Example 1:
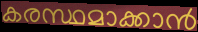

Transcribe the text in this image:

കരസ്ഥമാക്കാൻ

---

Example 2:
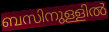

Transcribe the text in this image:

ബസിനുള്ളിൽ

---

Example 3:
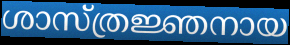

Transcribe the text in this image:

ശാസ്ത്രജ്ഞനായ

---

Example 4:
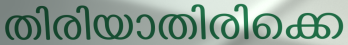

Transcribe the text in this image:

തിരിയാതിരിക്കെ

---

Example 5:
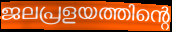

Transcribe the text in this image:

ജലപ്രളയത്തിന്റെ